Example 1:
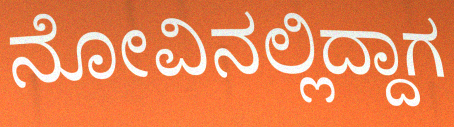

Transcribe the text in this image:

ನೋವಿನಲ್ಲಿದ್ದಾಗ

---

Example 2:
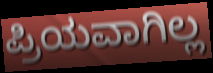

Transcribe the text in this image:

ಪ್ರಿಯವಾಗಿಲ್ಲ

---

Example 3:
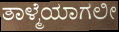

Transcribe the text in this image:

ತಾಳ್ಮೆಯಾಗಲೀ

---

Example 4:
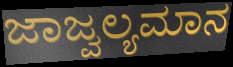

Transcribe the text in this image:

ಜಾಜ್ವಲ್ಯಮಾನ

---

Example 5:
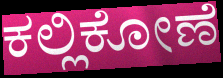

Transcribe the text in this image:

ಕಲ್ಲಿಕೋಣೆ